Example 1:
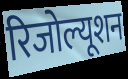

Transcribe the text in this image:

रिजोल्‍यूशन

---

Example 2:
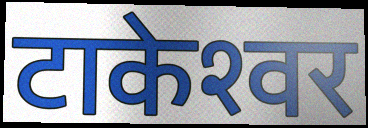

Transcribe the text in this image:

टाकेश्वर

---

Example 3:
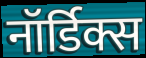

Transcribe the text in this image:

नॉर्डिक्स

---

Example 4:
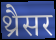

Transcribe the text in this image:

थ्रैसर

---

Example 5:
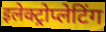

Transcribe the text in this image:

इलेक्ट्रोप्लेटिंग